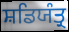
ਸ਼ਡਿਯੰਤ੍ਰ